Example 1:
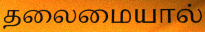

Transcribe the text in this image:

தலைமையால்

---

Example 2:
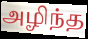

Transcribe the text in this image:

அழிந்த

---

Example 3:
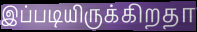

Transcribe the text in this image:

இப்படியிருக்கிறதா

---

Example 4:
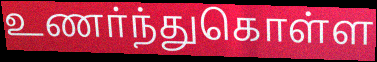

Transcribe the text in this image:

உணர்ந்துகொள்ள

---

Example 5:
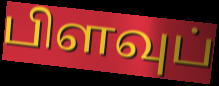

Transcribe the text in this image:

பிளவுப்